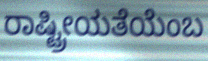
ರಾಷ್ಟ್ರೀಯತೆಯೆಂಬ